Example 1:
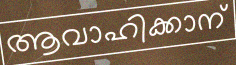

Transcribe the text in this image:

ആവാഹിക്കാന്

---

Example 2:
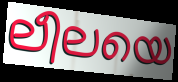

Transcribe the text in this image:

ലീലയെ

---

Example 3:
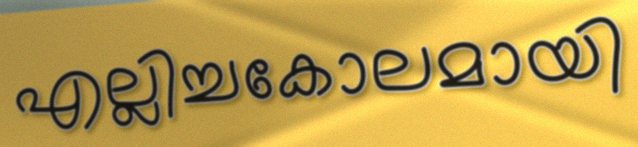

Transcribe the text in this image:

എല്ലിച്ചകോലമായി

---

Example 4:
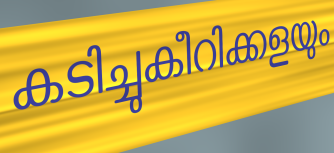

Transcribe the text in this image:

കടിച്ചുകീറിക്കളയും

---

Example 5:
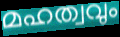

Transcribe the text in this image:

മഹത്വവും